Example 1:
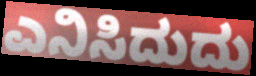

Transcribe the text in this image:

ಎನಿಸಿದುದು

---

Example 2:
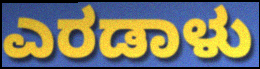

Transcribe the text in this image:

ಎರಡಾಳು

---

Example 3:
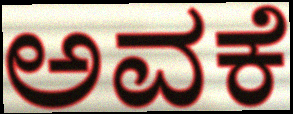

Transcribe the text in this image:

ಅವಕೆ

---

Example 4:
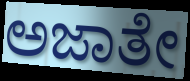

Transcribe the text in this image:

ಅಜಾತೇ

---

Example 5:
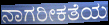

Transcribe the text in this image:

ನಾಗರೀಕತೆಯ